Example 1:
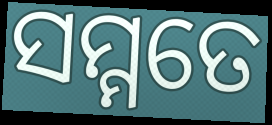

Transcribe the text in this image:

ସମ୍ମତେ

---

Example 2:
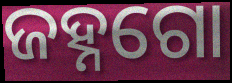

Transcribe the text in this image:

ଜହ୍ନଗୋ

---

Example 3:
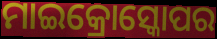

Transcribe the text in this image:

ମାଇକ୍ରୋସ୍କୋପର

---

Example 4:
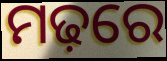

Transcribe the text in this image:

ମଢ଼ରେ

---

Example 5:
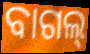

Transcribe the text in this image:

ବାଗଲ୍